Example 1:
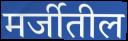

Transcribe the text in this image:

मर्जीतील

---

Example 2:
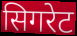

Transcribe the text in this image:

सिगरेट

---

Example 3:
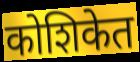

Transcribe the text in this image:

कोशिकेत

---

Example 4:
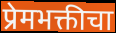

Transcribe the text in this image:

प्रेमभक्तीचा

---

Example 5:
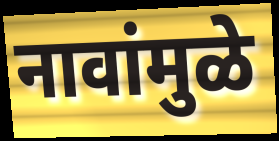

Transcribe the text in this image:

नावांमुळे